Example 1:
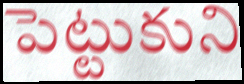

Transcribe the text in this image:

పెట్టుకుని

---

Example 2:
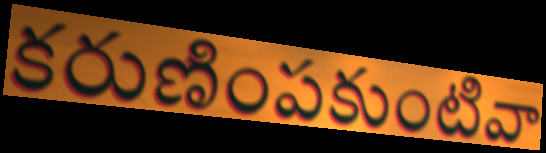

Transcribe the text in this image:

కరుణింపకుంటివా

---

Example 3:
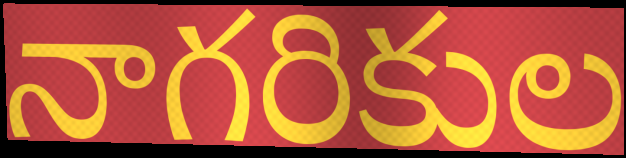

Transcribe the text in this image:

నాగరికుల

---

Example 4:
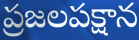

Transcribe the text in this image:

ప్రజలపక్షాన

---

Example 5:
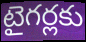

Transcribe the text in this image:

టైగర్లకు